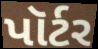
પૉર્ટર